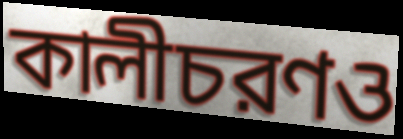
কালীচরণও